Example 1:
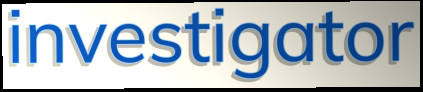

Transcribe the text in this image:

investigator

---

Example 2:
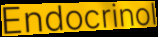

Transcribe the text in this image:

Endocrinol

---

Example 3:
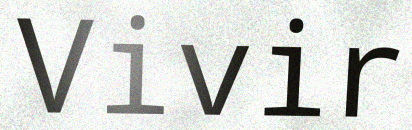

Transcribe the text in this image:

Vivir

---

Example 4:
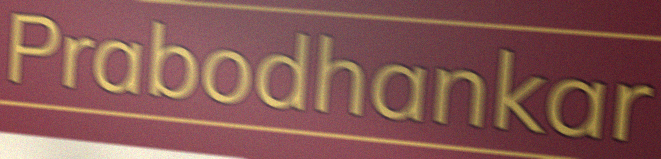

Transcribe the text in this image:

Prabodhankar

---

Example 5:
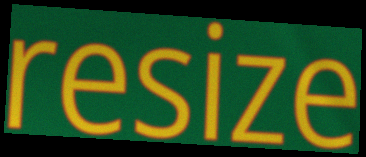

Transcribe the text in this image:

resize